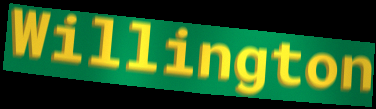
Willington